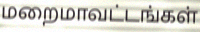
மறைமாவட்டங்கள்